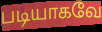
படியாகவே